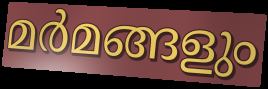
മർമങ്ങളും